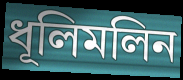
ধূলিমলিন